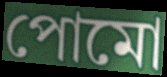
পোমো